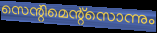
സെന്റിമെന്റ്സൊന്നും